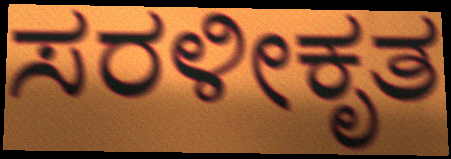
ಸರಳೀಕೃತ